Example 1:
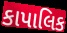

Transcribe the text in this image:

કાપાલિક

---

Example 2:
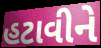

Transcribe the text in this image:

હટાવીને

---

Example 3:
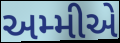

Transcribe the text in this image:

અમ્મીએ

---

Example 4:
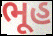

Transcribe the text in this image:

ભૂહ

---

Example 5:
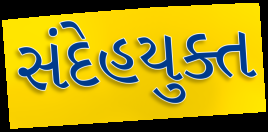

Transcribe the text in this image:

સંદેહયુક્ત